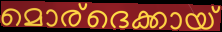
മൊര്ദെക്കായ്